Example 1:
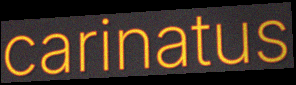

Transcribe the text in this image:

carinatus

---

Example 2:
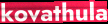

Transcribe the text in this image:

kovathula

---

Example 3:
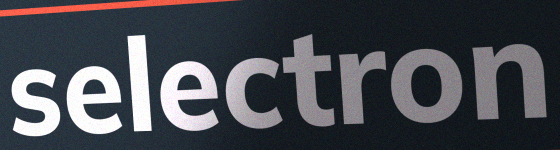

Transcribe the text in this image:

selectron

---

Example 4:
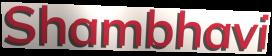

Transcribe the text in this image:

Shambhavi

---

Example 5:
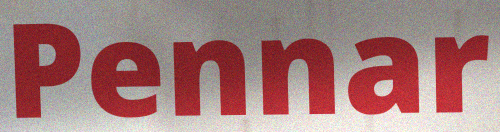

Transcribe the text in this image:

Pennar